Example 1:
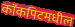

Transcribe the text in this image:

कॉकपिटमधील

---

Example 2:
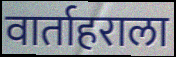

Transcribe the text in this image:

वार्ताहराला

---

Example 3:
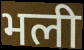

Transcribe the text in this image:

भली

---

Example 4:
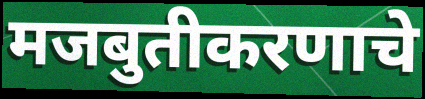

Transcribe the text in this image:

मजबुतीकरणाचे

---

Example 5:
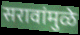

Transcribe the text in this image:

सरावांमुळे